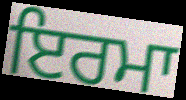
ਇਰਮਾ